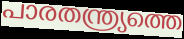
പാരതന്ത്ര്യത്തെ